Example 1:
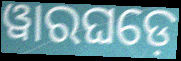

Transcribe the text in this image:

ୱାରଘଡ଼େ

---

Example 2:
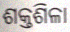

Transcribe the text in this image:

ଶକ୍ତଶିଳା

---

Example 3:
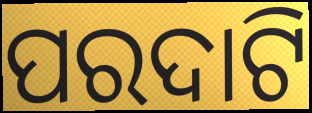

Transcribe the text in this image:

ପରଦାଟି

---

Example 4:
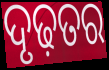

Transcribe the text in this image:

ଦୃଢ଼ତର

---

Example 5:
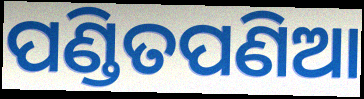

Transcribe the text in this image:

ପଣ୍ଡିତପଣିଆ